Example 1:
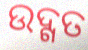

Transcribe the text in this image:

ଉଦ୍ଗତ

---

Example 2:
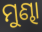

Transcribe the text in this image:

ମୁଣ୍ଢା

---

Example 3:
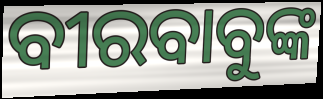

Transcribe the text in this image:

ବୀରବାବୁଙ୍କ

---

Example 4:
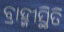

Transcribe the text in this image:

ବ୍ରାହ୍ମୀସ୍ଥିତି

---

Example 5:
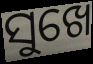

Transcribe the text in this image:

ସୁଖେ